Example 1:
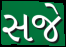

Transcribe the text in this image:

સજે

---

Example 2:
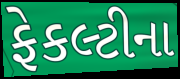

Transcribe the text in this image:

ફેકલ્ટીના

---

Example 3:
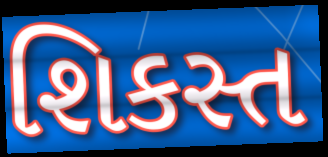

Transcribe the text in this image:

શિકસ્ત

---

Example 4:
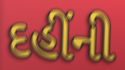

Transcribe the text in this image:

દહીંની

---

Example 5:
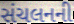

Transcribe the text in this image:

સંચલનની